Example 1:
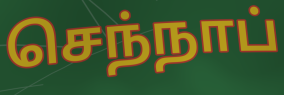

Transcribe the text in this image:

செந்நாப்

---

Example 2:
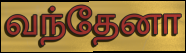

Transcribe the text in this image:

வந்தேனா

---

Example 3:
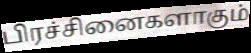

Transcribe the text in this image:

பிரச்சினைகளாகும்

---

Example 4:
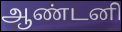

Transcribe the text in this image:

ஆண்டனி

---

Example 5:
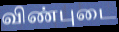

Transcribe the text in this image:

விண்புடை